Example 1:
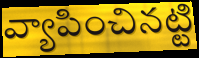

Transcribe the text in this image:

వ్యాపించినట్టి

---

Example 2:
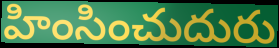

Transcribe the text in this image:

హింసించుదురు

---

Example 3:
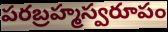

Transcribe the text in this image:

పరబ్రహ్మస్వరూపం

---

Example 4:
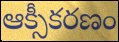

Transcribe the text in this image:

ఆక్సీకరణం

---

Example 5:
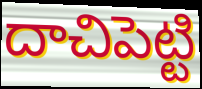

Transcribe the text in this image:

దాచిపెట్టి